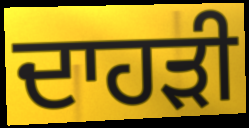
ਦਾਹੜੀ